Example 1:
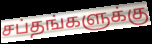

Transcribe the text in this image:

சப்தங்களுக்கு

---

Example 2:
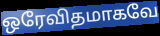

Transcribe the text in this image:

ஒரேவிதமாகவே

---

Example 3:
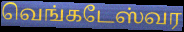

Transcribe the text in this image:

வெங்கடேஸ்வர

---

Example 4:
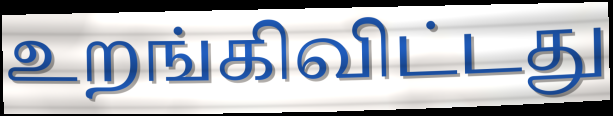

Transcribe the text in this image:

உறங்கிவிட்டது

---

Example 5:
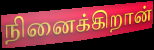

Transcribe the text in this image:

நினைக்கிறான்